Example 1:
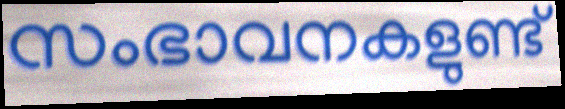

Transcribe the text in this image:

സംഭാവനകളുണ്ട്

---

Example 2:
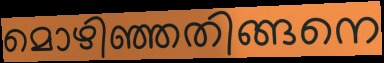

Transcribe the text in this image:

മൊഴിഞ്ഞതിങ്ങനെ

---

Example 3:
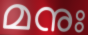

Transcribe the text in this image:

മനുഃ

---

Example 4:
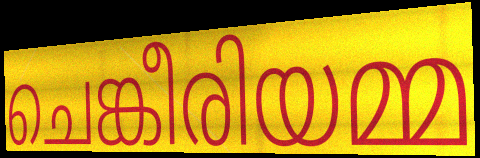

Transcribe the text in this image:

ചെങ്കീരിയമ്മ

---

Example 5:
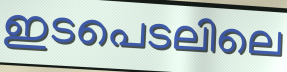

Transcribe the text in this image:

ഇടപെടലിലെ